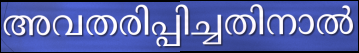
അവതരിപ്പിച്ചതിനാൽ